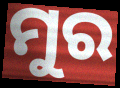
ମୁର